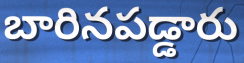
బారినపడ్డారు